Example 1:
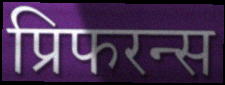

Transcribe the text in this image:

प्रिफरन्स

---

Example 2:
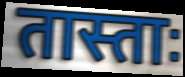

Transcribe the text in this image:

तास्ताः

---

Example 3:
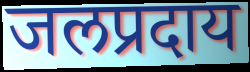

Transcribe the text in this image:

जलप्रदाय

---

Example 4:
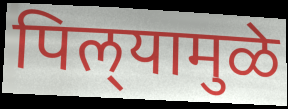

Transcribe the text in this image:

पिल्यामुळे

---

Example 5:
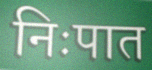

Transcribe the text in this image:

निःपात